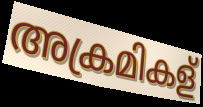
അക്രമികള്